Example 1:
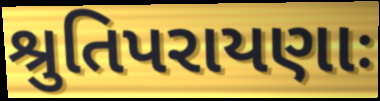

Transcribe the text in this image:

શ્રુતિપરાયણાઃ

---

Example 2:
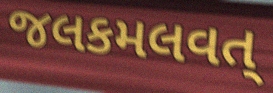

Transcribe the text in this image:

જલકમલવત્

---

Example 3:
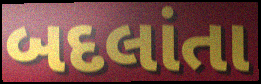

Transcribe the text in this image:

બદલાંતા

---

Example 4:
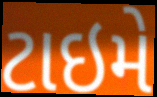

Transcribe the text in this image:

ટાઇમે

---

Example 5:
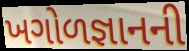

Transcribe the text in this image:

ખગોળજ્ઞાનની